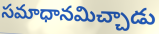
సమాధానమిచ్చాడు